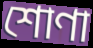
শোণা